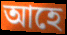
আহে